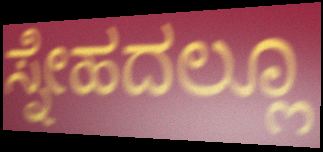
ಸ್ನೇಹದಲ್ಲೂ